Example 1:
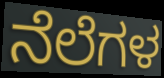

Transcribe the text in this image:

ನೆಲೆಗಳ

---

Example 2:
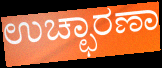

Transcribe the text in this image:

ಉಚ್ಛಾರಣಾ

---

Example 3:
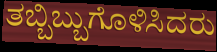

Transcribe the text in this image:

ತಬ್ಬಿಬ್ಬುಗೊಳಿಸಿದರು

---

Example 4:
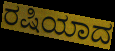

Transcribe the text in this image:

ರಷಿಯಾದ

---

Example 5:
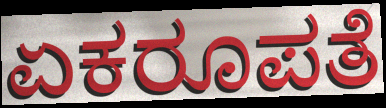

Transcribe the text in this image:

ಏಕರೂಪತೆ